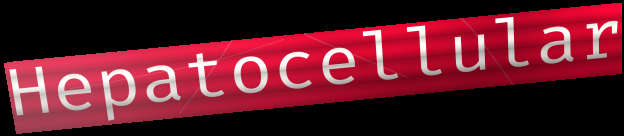
Hepatocellular